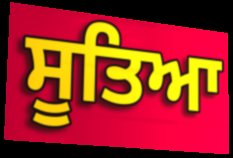
ਸੂਤਿਆ